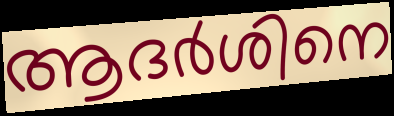
ആദർശിനെ